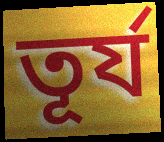
তূর্য